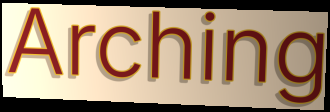
Arching